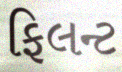
ફિલન્ટ